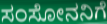
ಸಂಸೋನನಿಗೆ